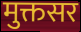
मुक्तसर